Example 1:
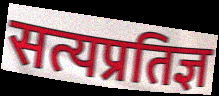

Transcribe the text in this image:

सत्यप्रतिज्ञ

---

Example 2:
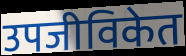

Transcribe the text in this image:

उपजीविकेत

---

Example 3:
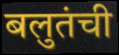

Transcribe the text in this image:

बलुतंची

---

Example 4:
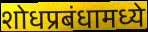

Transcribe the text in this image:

शोधप्रबंधामध्ये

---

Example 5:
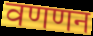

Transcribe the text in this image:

वणणन